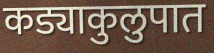
कड्याकुलुपात